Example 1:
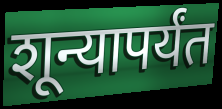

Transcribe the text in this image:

शून्यापर्यंत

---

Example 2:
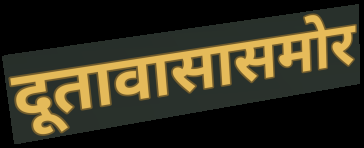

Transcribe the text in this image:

दूतावासासमोर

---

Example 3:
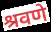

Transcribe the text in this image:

श्रवणे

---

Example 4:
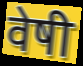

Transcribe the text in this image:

वेषी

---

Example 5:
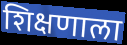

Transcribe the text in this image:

शिक्षणाला